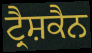
ਟ੍ਰੈਸ਼ਕੈਨ